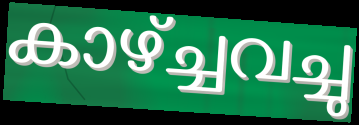
കാഴ്ച്ചവച്ചു